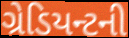
ગ્રેડિયન્ટની